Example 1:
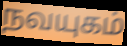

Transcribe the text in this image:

நவயுகம்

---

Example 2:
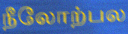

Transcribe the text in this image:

நீலோற்பல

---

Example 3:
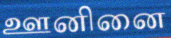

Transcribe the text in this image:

ஊனினை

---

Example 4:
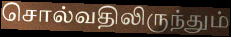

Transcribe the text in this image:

சொல்வதிலிருந்தும்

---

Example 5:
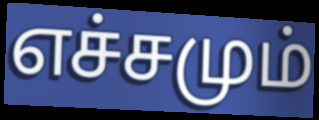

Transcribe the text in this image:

எச்சமும்